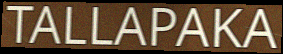
TALLAPAKA